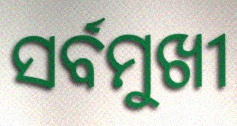
ସର୍ବମୁଖୀ